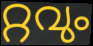
റ്റവും